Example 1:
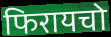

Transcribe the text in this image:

फिरायचो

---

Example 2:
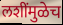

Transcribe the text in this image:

लशींमुळेच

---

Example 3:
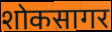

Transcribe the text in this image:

शोकसागर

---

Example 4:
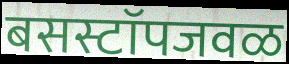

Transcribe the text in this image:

बसस्टॉपजवळ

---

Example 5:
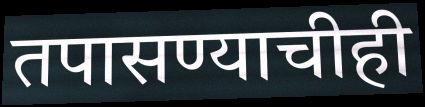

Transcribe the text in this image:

तपासण्याचीही